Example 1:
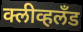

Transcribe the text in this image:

क्लीव्हलँड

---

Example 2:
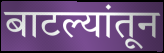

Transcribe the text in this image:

बाटल्यांतून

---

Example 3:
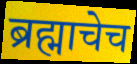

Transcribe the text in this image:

ब्रह्माचेच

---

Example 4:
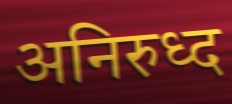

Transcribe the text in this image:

अनिरुध्द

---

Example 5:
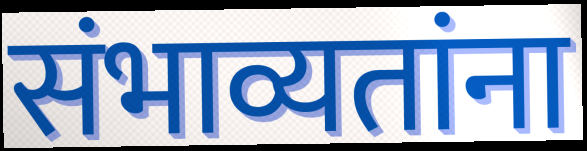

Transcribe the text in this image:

संभाव्यतांना